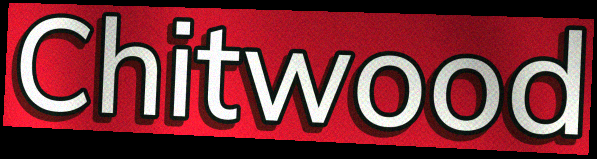
Chitwood